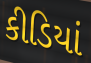
કીડિયાં